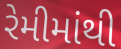
રેમીમાંથી